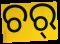
ଚର୍